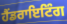
ਹੈਂਡਰਾਇਟਿੰਗ